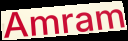
Amram